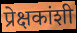
प्रेक्षकांशी